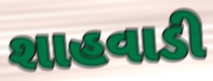
શાહવાડી